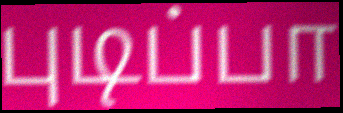
புடிப்பா